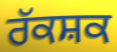
ਰੱਕਸ਼ਕ